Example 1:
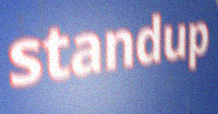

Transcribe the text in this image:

standup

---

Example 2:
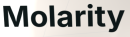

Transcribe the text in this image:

Molarity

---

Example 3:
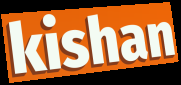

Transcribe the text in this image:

kishan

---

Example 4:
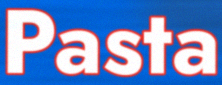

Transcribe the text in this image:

Pasta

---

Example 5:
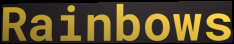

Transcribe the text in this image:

Rainbows